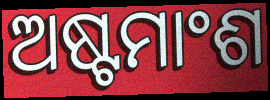
ଅଷ୍ଟମାଂଶ